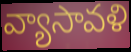
వ్యాసావళి